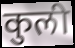
कुली